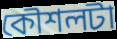
কৌশলটা